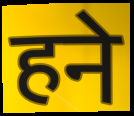
हने